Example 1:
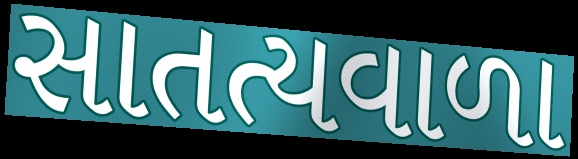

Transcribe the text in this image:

સાતત્યવાળા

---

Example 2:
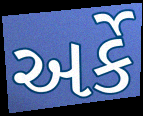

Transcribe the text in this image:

અર્કે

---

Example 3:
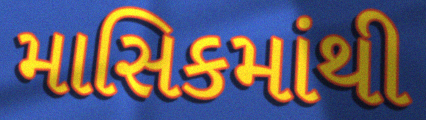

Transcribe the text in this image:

માસિકમાંથી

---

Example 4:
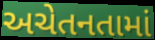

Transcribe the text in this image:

અચેતનતામાં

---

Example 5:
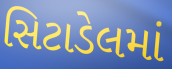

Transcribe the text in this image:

સિટાડેલમાં